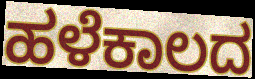
ಹಳೆಕಾಲದ